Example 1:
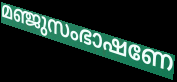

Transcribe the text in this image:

മഞ്ജുസംഭാഷണേ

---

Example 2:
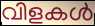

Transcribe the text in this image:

വിളകൾ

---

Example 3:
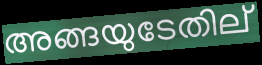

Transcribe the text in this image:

അങ്ങയുടേതില്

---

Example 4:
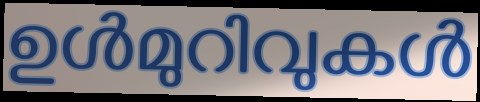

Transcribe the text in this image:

ഉൾമുറിവുകൾ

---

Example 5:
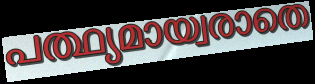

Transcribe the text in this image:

പത്ഥ്യമായ്വരാതെ